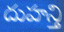
దుహన్తి